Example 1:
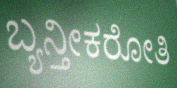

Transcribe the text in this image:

ಬ್ಯನ್ತೀಕರೋತಿ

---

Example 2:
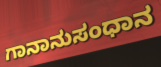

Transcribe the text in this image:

ಗಾನಾನುಸಂಧಾನ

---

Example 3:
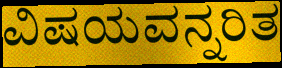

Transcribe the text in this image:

ವಿಷಯವನ್ನರಿತ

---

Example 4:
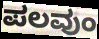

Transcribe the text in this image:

ಪಲವುಂ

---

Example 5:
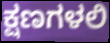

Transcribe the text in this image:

ಕ್ಷಣಗಳಲಿ